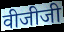
वीजीजी